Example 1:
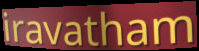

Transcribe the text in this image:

iravatham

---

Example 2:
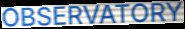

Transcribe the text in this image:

OBSERVATORY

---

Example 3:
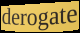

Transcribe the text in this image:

derogate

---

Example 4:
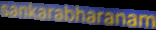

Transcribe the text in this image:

sankarabharanam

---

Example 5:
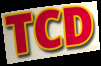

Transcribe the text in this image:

TCD